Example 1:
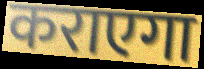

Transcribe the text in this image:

कराएगा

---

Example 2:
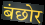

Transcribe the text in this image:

बंछोर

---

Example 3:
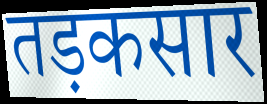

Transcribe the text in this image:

तड़कसार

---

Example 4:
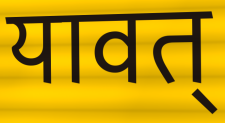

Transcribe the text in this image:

यावत्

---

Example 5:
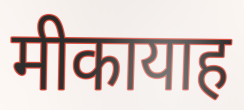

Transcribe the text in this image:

मीकायाह